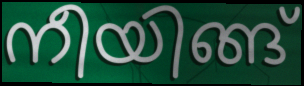
നീയിങ്ങ്